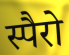
स्पैरो